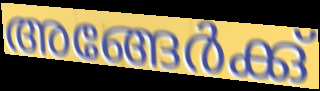
അങ്ങേർക്കു്